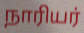
நாரியர்